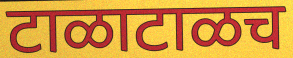
टाळाटाळच